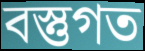
বস্তুগত